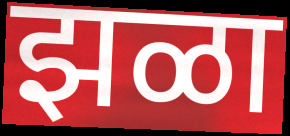
झळा